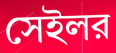
সেইলর